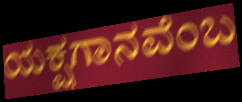
ಯಕ್ಷಗಾನವೆಂಬ